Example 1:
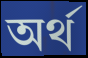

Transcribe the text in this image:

অর্থ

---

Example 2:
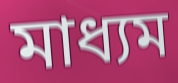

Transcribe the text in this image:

মাধ্যম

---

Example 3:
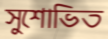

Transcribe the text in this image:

সুশোভিত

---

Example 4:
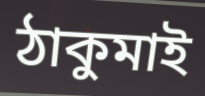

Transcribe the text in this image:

ঠাকুমাই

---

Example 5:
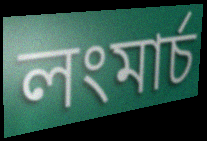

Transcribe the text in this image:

লংমার্চ